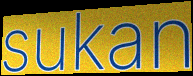
sukan